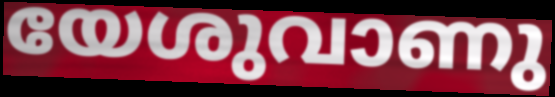
യേശുവാണു